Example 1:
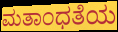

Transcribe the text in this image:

ಮತಾಂಧತೆಯ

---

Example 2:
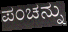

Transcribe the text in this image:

ಪಂಚನ್ನು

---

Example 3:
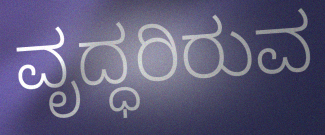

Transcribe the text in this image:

ವೃದ್ಧರಿರುವ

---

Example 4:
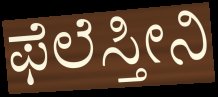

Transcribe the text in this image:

ಫೆಲೆಸ್ತೀನಿ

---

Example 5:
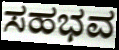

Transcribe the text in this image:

ಸಹಭವ